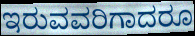
ಇರುವವರಿಗಾದರೂ